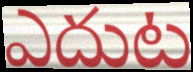
ఎదుట